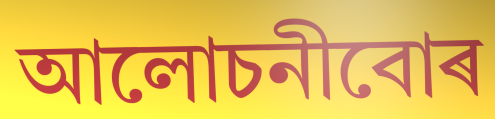
আলোচনীবোৰ